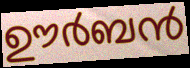
ഊർബൻ